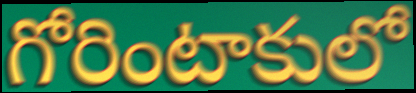
గోరింటాకులో